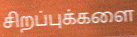
சிறப்புக்களை